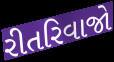
રીતરિવાજો